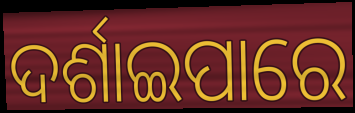
ଦର୍ଶାଇପାରେ